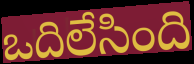
ఒదిలేసింది